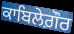
ਕਾਬਿਲੇਗ਼ੌਰ